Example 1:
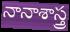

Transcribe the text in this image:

నానాశాస్త్ర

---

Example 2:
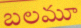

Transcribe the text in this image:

బలమూ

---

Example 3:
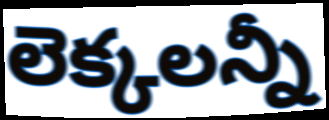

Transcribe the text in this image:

లెక్కలన్నీ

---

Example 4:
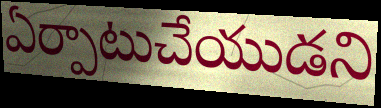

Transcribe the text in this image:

ఏర్పాటుచేయుడని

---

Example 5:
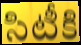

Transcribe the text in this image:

సిటీకి